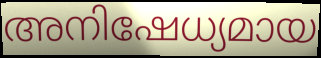
അനിഷേധ്യമായ